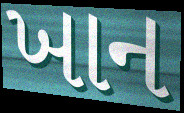
ખાન